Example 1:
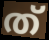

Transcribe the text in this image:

ത്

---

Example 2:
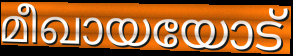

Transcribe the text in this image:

മീഖായയോട്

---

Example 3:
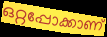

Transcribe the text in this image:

ഒറ്റപ്പോക്കാണ്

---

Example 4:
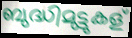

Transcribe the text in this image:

ബുദ്ധിമുട്ടുകള്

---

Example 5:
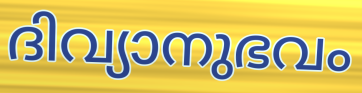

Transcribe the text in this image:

ദിവ്യാനുഭവം